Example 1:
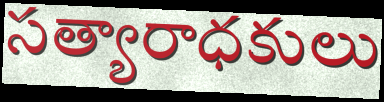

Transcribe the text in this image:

సత్యారాధకులు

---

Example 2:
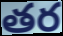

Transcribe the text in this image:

తర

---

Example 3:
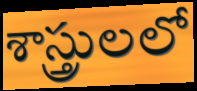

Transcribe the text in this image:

శాస్త్రులలో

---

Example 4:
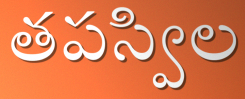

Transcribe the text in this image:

తపస్విల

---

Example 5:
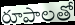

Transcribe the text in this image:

రూపాలతో